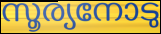
സൂര്യനോടു